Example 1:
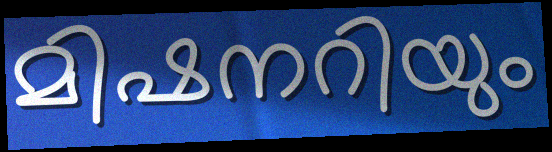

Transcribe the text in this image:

മിഷനറിയും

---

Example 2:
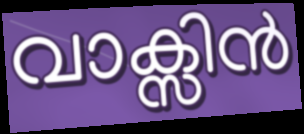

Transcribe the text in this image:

വാക്സിൻ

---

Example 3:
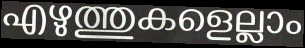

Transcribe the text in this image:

എഴുത്തുകളെല്ലാം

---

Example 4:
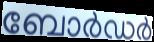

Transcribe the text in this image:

ബോർഡർ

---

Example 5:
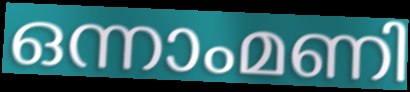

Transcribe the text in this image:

ഒന്നാംമണി